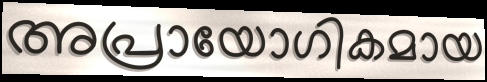
അപ്രായോഗികമായ